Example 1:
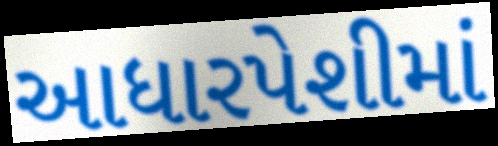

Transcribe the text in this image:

આધારપેશીમાં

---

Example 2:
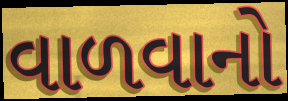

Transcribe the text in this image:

વાળવાનો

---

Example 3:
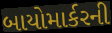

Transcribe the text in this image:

બાયોમાર્કરની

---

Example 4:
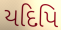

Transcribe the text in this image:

યદિપિ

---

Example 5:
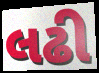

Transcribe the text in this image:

લઢી